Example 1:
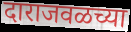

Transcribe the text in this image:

दाराजवळच्या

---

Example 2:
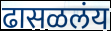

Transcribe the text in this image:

ढासळलंय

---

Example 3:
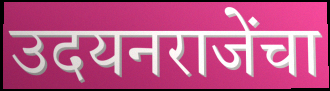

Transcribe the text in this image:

उदयनराजेंचा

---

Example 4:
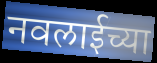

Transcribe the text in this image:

नवलाईच्या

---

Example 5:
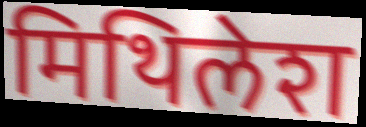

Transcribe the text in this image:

मिथिलेश